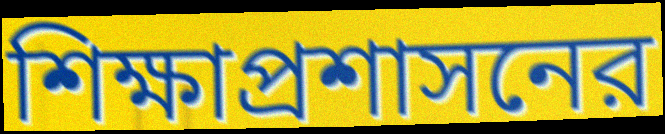
শিক্ষাপ্রশাসনের